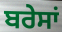
ਬਰੇਸਾਂ